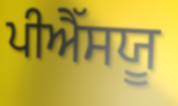
ਪੀਐੱਸਯੂ